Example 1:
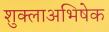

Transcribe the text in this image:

शुक्लाअभिषेक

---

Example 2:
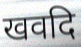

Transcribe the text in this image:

खवदि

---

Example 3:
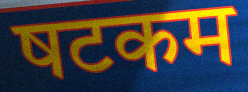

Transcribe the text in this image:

षटकम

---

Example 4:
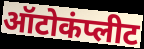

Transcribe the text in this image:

ऑटोकंप्लीट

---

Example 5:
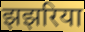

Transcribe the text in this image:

झझरिया